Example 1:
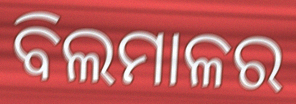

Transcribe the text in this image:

ବିଲମାଳର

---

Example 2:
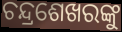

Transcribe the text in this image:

ଚନ୍ଦ୍ରଶେଖରଙ୍କୁ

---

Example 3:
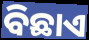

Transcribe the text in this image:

ବିଛାଏ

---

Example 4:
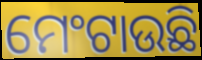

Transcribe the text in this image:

ମେଂଟାଉଛି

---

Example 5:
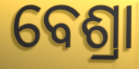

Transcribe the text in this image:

ବେଶ୍ରା